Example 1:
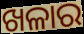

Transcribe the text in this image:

ଖଳାର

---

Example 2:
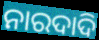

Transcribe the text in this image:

ନାରଦାଦି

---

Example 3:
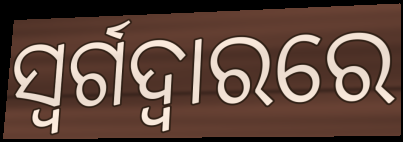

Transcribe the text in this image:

ସ୍ୱର୍ଗଦ୍ୱାରରେ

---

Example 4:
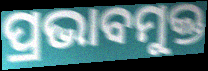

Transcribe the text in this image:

ପ୍ରଭାବମୁକ୍ତ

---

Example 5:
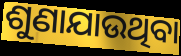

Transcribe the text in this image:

ଶୁଣାଯାଉଥିବା